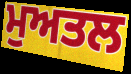
ਮੁਅਤਲ